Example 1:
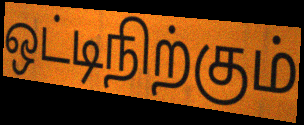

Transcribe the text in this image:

ஒட்டிநிற்கும்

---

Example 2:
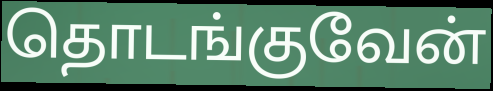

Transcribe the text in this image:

தொடங்குவேன்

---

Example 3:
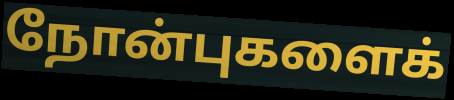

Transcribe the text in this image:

நோன்புகளைக்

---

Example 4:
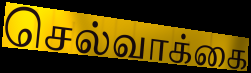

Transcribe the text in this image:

செல்வாக்கை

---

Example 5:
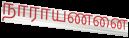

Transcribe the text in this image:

நாராயணனை